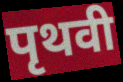
पृथवी